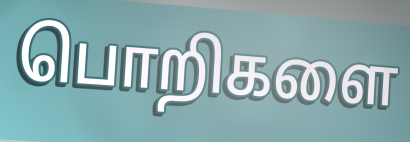
பொறிகளை